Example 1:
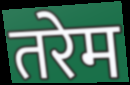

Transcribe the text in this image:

तरेम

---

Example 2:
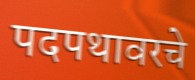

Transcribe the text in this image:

पदपथावरचे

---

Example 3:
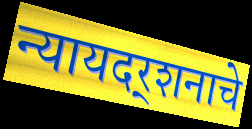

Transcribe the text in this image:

न्यायदर्शनाचे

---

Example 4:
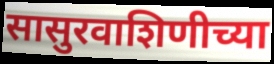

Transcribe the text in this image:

सासुरवाशिणीच्या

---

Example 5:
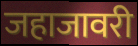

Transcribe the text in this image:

जहाजावरी